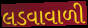
લડવાવાળી